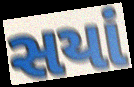
સયાં